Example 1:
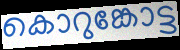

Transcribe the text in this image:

കൊറുങ്കോട്ട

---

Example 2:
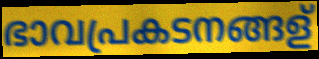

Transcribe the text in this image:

ഭാവപ്രകടനങ്ങള്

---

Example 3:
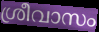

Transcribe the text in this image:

ശ്രീവാസം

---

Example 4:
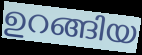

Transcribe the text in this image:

ഉറങ്ങിയ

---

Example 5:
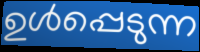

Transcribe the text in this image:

ഉൾപ്പെടുന്ന